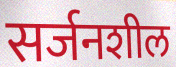
सर्जनशील